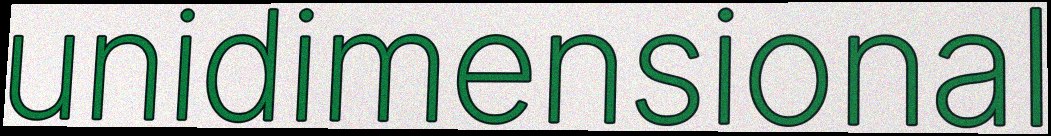
unidimensional